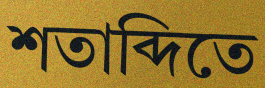
শতাব্দিতে